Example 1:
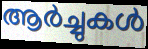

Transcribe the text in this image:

ആർച്ചുകൾ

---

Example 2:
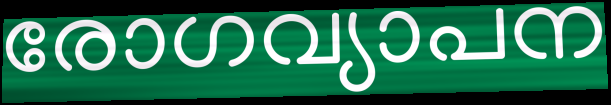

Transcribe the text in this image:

രോഗവ്യാപന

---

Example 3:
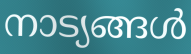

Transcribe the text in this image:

നാട്യങ്ങൾ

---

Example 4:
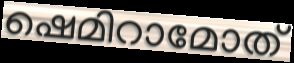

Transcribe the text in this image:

ഷെമിറാമോത്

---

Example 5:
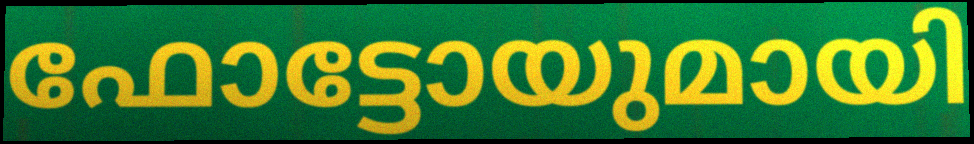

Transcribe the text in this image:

ഫോട്ടോയുമായി